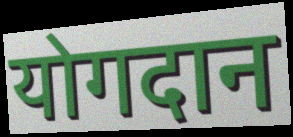
योगदान